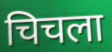
चिचला